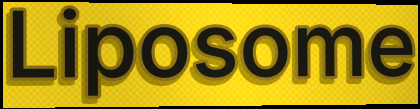
Liposome